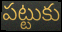
పట్టుకు